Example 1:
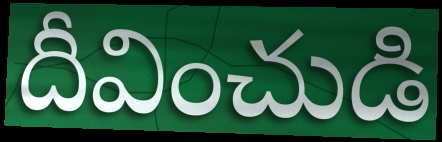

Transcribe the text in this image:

దీవించుడి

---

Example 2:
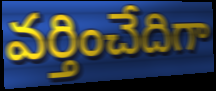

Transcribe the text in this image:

వర్తించేదిగా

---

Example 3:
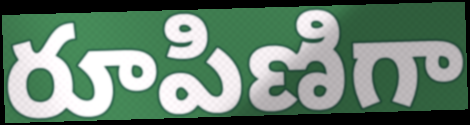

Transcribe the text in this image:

రూపిణిగా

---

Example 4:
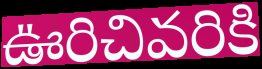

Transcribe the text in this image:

ఊరిచివరికి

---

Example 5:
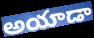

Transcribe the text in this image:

అయాడా